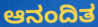
ಆನಂದಿತ